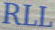
RLL